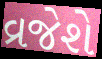
વ્રજેશે